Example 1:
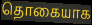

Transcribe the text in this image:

தொகையாக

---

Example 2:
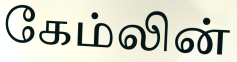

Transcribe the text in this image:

கேம்லின்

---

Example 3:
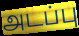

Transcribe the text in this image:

அடப்பு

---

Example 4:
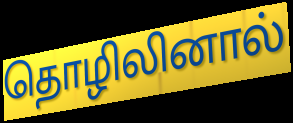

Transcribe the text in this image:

தொழிலினால்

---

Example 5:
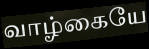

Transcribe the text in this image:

வாழ்கையே